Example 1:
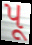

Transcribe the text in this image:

પૂ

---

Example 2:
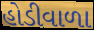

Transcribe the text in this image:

હોડીવાળા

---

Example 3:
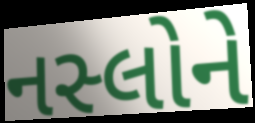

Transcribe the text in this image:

નસ્લોને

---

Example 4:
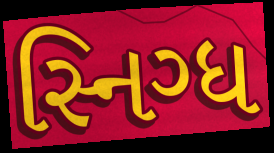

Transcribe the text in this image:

સ્નિગ્ધ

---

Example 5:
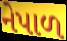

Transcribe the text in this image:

નેપાળ